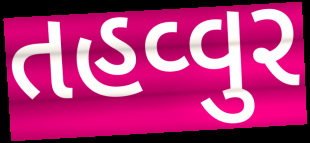
તહવ્વુર